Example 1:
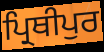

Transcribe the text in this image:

ਪ੍ਰਿਥੀਪੁਰ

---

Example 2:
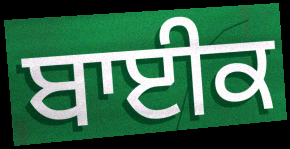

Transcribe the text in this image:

ਬਾਈਕ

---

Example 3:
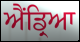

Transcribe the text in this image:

ਐਂਡ੍ਰਿਆ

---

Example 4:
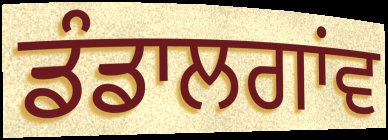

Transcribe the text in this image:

ਡੰਡਾਲਗਾਂਵ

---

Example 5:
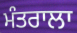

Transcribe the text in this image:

ਮੰਤਰਾਲਾ